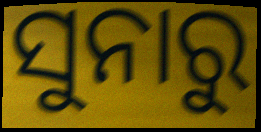
ସୁନାରୁ